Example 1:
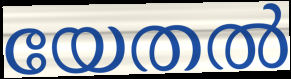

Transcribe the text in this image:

യേതൽ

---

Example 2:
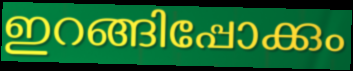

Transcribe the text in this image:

ഇറങ്ങിപ്പോക്കും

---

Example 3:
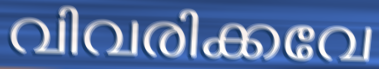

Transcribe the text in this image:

വിവരിക്കവേ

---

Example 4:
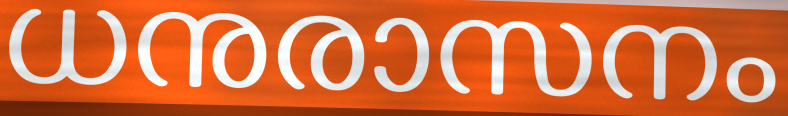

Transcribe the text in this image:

ധനുരാസനം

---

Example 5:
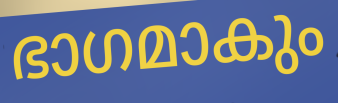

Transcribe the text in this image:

ഭാഗമാകും